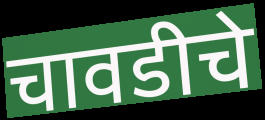
चावडीचे